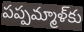
పప్పమ్మాళ్‌కు